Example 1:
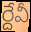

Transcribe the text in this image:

ర్దేవీ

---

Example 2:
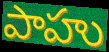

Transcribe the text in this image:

పాహు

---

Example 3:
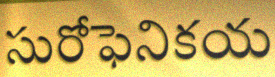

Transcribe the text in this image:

సురోఫెనికయ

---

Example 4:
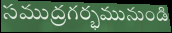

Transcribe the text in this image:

సముద్రగర్భమునుండి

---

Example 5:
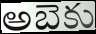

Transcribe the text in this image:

అబెకు